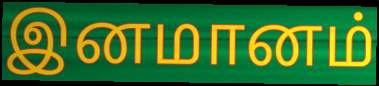
இனமானம்